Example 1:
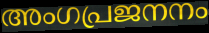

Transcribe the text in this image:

അംഗപ്രജനനം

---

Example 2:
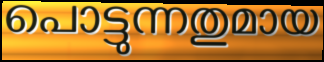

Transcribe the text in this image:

പൊട്ടുന്നതുമായ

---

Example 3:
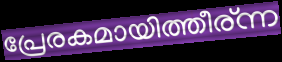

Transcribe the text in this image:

പ്രേരകമായിത്തീര്ന്ന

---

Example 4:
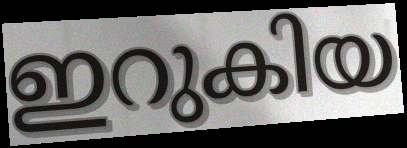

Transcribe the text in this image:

ഇറുകിയ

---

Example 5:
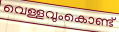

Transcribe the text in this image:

വെള്ളവുംകൊണ്ട്